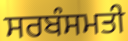
ਸਰਬੰਸਮਤੀ